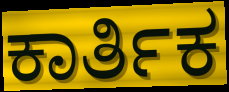
ಕಾರ್ತಿಕ